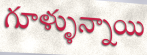
గూళ్ళున్నాయి